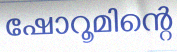
ഷോറൂമിന്റെ